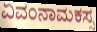
ಏವಂನಾಮಕಸ್ಸ